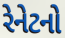
રેનેટનો